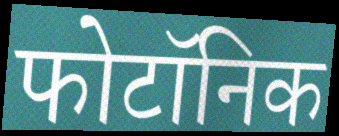
फोटॉनिक